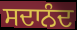
ਸਦਾਨੰਦ